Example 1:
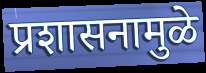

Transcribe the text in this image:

प्रशासनामुळे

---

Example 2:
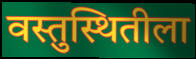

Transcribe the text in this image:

वस्तुस्थितीला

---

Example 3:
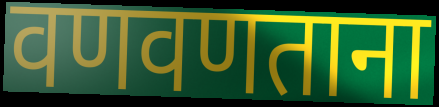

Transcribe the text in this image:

वणवणताना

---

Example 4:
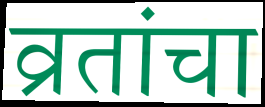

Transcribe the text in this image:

व्रतांचा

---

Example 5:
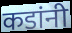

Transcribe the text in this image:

कडांनी